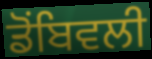
ਡੋਂਬਿਵਲੀ